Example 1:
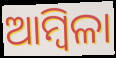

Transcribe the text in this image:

ଆମ୍ବିଳା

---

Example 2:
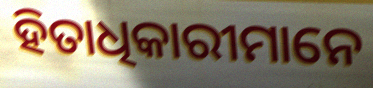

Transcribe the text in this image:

ହିତାଧିକାରୀମାନେ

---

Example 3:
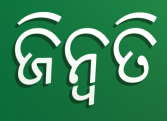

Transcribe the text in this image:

ଜିନ୍ୱତି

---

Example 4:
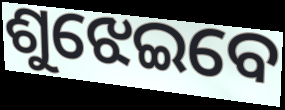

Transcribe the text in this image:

ଶୁଝେଇବେ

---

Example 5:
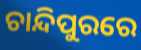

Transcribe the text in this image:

ଚାନ୍ଦିପୁରରେ